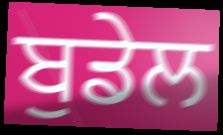
ਬੁਡੇਲ